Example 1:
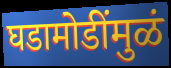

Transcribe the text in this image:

घडामोडींमुळं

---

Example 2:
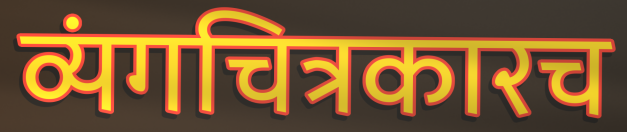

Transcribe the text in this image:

व्यंगचित्रकारच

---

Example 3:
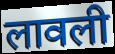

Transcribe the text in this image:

लावली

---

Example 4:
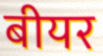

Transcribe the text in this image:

बीयर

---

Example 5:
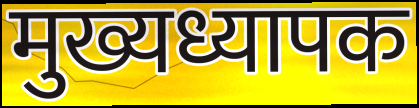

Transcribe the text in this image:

मुख्यध्यापक